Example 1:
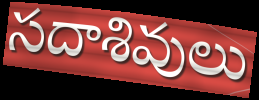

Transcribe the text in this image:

సదాశివులు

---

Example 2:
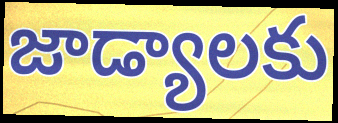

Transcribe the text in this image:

జాడ్యాలకు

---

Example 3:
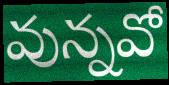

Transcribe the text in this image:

వున్నవో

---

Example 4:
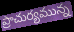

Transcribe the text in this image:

ప్రాచుర్యమున్న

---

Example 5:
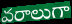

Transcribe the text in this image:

వరాలుగా